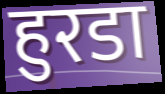
हुरडा